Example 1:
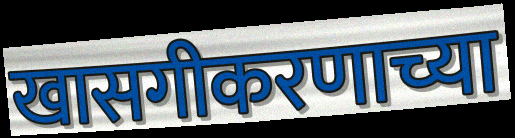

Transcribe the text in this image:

खासगीकरणाच्या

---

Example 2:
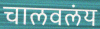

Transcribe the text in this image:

चालवलंय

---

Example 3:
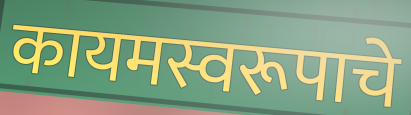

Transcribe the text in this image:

कायमस्वरूपाचे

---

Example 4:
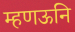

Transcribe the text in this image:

म्हणऊनि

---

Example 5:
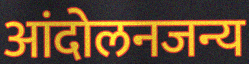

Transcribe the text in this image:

आंदोलनजन्य